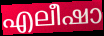
എലീഷാ